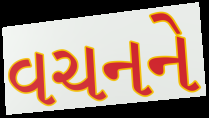
વચનને